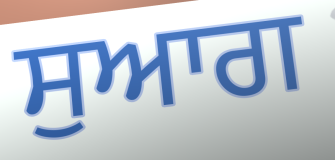
ਸੁਆਗ